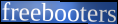
freebooters